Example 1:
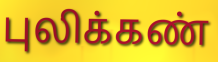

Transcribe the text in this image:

புலிக்கண்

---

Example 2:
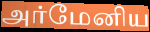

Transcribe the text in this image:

அர்மேனிய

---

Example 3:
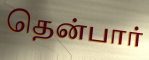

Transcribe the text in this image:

தென்பார்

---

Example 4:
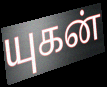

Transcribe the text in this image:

யுகன்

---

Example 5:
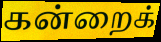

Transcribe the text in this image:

கன்றைக்